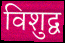
विशुद्व